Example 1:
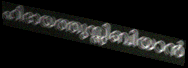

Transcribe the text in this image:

ഹിദായത്തുസ്സിബിയാൻ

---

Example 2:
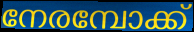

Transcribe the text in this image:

നേരമ്പോക്ക്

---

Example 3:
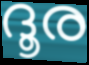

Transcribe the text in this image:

ദൂര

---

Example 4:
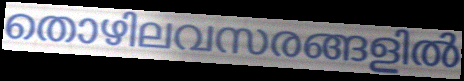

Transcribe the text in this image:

തൊഴിലവസരങ്ങളിൽ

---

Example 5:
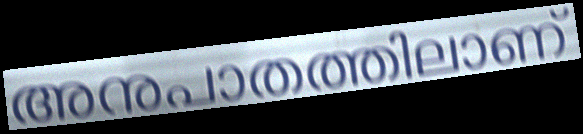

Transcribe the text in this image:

അനുപാതത്തിലാണ്